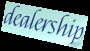
dealership